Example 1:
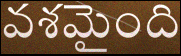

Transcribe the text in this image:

వశమైంది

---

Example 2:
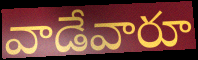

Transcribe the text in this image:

వాడేవారూ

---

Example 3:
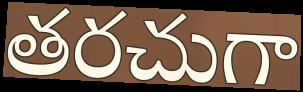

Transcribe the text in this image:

తరచుగా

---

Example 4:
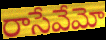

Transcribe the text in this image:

రాసేవేమో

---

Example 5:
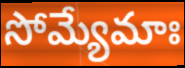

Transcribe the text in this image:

సోమ్యేమాః